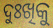
ଦୁଃଖିକୁ